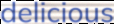
delicious